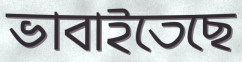
ভাবাইতেছে